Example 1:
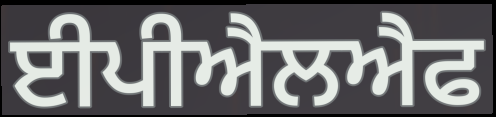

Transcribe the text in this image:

ਈਪੀਐਲਐਫ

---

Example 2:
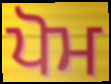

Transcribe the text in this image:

ਪੋਮ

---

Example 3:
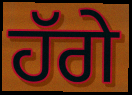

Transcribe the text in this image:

ਹੱਗੇ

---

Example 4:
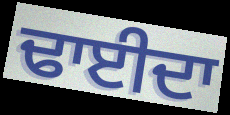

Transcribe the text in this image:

ਢਾਈਦਾ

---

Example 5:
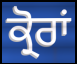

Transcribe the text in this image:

ਕ੍ਰੋਰਾਂ